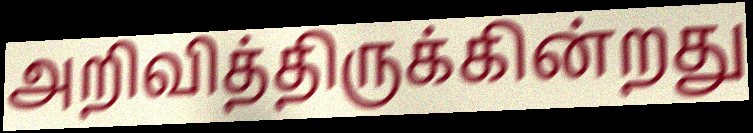
அறிவித்திருக்கின்றது